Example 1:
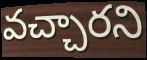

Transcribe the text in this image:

వచ్చారని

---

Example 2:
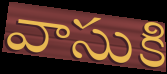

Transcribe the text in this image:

వాసుకి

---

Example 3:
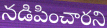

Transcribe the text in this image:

నడిపించారని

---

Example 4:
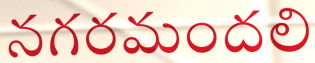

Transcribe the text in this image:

నగరమందలి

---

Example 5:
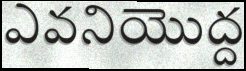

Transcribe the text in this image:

ఎవనియొద్ద